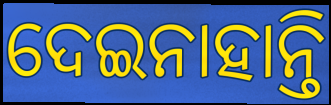
ଦେଇନାହାନ୍ତି